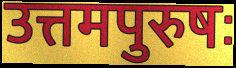
उत्तमपुरुषः